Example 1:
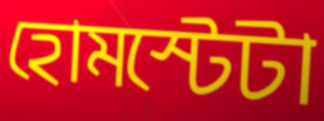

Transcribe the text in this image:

হোমস্টেটা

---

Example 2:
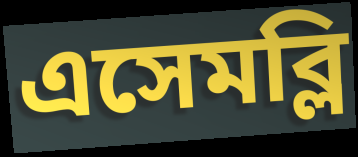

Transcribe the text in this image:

এসেমব্লি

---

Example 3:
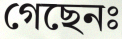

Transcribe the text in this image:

গেছেনঃ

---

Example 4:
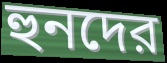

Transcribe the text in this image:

হুনদের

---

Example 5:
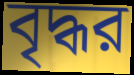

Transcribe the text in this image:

বৃদ্ধর